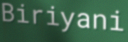
Biriyani